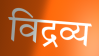
विद्रव्य